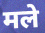
मले